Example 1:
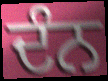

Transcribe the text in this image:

ਦੰਨ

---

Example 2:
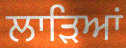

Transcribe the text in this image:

ਲਾੜਿਆਂ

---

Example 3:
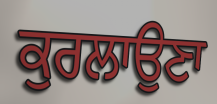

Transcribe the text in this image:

ਕੁਰਲਾਉਣਾ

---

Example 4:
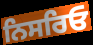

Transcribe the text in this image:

ਨਿਸਰਿਓ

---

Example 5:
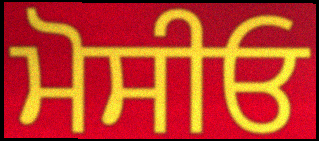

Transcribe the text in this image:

ਮੋਸੀਓ